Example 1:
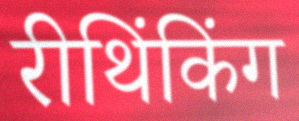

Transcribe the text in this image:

रीथिंकिंग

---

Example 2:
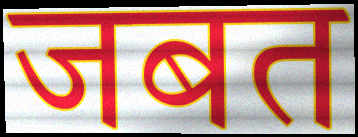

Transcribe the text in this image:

जबत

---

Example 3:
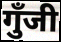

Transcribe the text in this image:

गुँजी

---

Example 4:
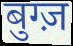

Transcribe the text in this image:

बुग्ज़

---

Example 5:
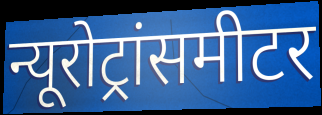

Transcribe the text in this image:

न्यूरोट्रांसमीटर